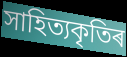
সাহিত্যকৃতিৰ